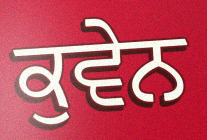
ਕੁਵੇਨ